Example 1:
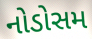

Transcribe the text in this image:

નોડોસમ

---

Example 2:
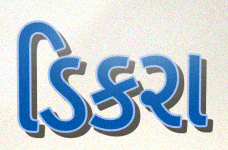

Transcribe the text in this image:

ડિકરા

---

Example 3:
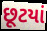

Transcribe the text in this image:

છૂટયાં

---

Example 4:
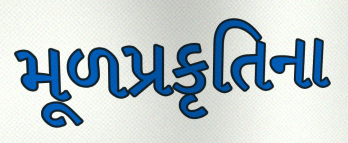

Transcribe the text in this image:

મૂળપ્રકૃતિના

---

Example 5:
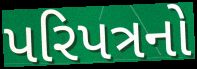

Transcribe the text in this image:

પરિપત્રનો